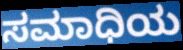
ಸಮಾಧಿಯ